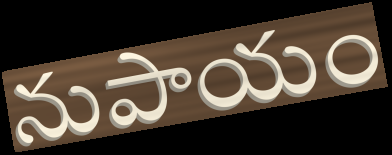
నుపాయం